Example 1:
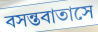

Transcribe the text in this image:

বসন্তবাতাসে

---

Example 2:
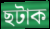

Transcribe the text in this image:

ছটাক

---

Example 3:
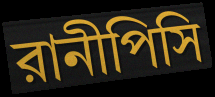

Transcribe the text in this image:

রানীপিসি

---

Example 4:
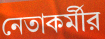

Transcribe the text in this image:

নেতাকর্মীর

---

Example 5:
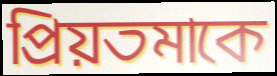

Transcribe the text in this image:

প্রিয়তমাকে